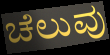
ಚೆಲುವು